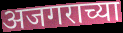
अजगराच्या